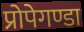
प्रोपेगण्डा